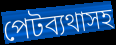
পেটব্যথাসহ